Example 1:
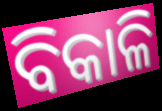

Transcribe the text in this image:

ବିକାଳି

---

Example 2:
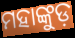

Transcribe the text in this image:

ମହାଙ୍କୁଡ଼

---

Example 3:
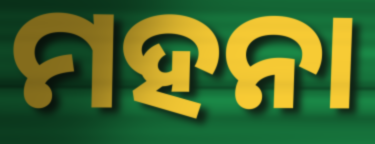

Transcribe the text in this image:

ମହନା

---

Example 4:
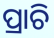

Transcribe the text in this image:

ପ୍ରାଚି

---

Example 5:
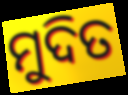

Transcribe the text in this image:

ମୁଦିତ